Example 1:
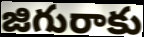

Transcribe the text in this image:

జిగురాకు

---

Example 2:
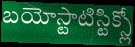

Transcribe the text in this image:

బయోస్టాటిస్టిక్స్లో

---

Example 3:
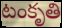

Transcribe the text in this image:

టంకృతి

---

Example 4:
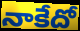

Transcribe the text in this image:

నాకేదో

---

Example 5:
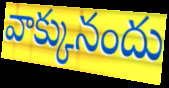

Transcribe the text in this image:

వాక్కునందు